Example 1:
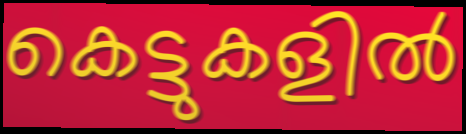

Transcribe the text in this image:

കെട്ടുകളിൽ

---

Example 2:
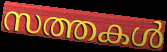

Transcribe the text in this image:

സത്തകൾ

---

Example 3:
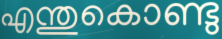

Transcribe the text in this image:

എന്തുകൊണ്ടു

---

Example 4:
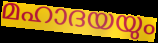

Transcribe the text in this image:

മഹാദയയും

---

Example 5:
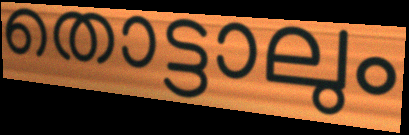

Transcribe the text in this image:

തൊട്ടാലും